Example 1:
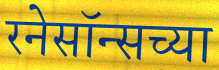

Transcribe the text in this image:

रनेसॉन्सच्या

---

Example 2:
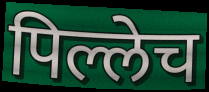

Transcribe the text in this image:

पिल्लेच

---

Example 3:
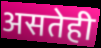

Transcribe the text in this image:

असतेही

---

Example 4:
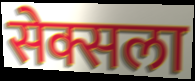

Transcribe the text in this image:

सेक्सला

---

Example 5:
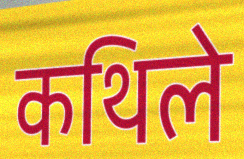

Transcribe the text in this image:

कथिले